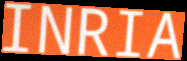
INRIA